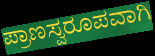
ಪ್ರಾಣಸ್ವರೂಪವಾಗಿ